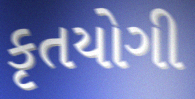
કૃતયોગી